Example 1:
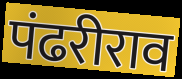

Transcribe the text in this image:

पंढरीराव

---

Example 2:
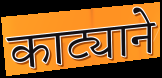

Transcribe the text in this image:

काट्याने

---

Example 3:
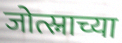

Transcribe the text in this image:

जोत्स्नाच्या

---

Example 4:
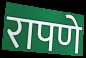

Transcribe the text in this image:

रापणे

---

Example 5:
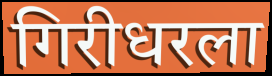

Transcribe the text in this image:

गिरीधरला